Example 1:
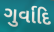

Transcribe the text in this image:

ગુર્વાદિ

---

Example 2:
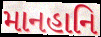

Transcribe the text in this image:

માનહાનિ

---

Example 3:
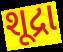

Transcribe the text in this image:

શૂદ્રા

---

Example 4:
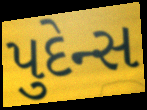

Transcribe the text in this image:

પુદેન્સ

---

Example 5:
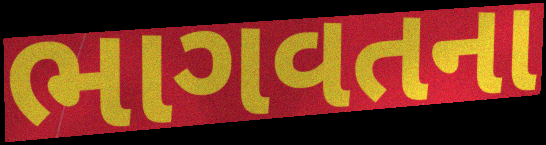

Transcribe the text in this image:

ભાગવતના